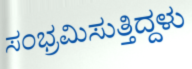
ಸಂಭ್ರಮಿಸುತ್ತಿದ್ದಳು